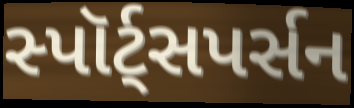
સ્પૉર્ટ્સપર્સન